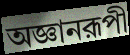
অজ্ঞানরূপী